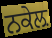
ਨਕੇਲ਼